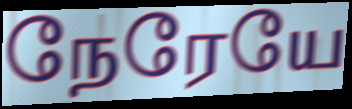
நேரேயே